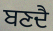
ਬਣਦੈ